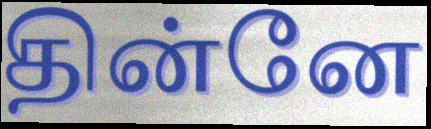
தின்னே